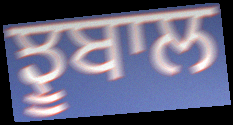
ਝੂਬਾਲ